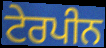
ਟੇਰਪੀਨ